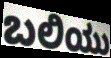
ಬಲಿಯು